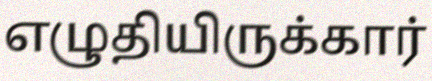
எழுதியிருக்கார்